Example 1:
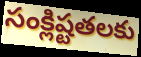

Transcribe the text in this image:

సంక్లిష్టతలకు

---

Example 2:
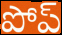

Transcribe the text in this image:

పోప్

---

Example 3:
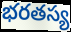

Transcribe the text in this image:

భరతస్య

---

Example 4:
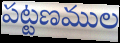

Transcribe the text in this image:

పట్టణముల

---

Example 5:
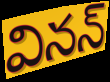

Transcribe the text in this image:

వినన్